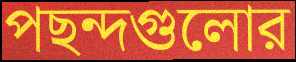
পছন্দগুলোর